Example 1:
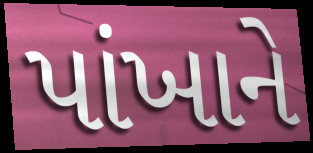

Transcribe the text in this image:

પાંખાને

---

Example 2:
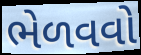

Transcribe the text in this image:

ભેળવવો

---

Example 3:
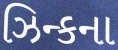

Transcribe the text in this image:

ઝિન્કના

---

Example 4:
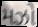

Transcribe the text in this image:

મઝો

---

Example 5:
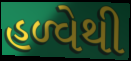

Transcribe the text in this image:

હળ્વેથી